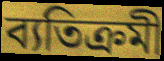
ব্যতিক্ৰমী